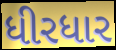
ધીરધાર